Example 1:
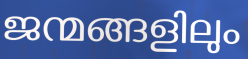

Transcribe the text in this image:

ജന്മങ്ങളിലും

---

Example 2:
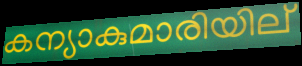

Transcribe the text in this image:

കന്യാകുമാരിയില്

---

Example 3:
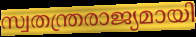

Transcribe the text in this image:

സ്വതന്ത്രരാജ്യമായി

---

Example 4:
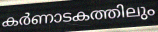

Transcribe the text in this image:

കർണാടകത്തിലും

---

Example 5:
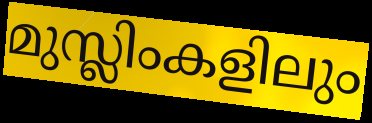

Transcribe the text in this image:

മുസ്ലിംകളിലും